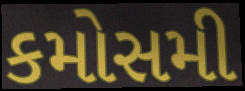
કમોસમી